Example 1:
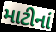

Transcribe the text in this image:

માટીનાં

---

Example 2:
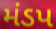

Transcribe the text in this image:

મંડપ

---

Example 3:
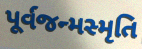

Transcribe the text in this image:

પૂર્વજન્મસ્મૃતિ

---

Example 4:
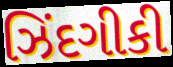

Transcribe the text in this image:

ઝિંદગીકી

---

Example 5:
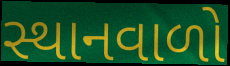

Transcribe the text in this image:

સ્થાનવાળો